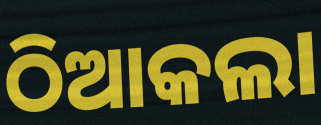
ଠିଆକଲା